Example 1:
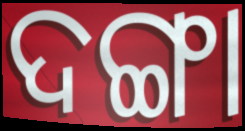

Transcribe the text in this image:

ଦଙ୍ଗା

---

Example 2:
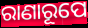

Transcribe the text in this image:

ରାଣାରୂପେ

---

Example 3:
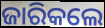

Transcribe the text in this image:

ଜାରିକଲେ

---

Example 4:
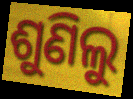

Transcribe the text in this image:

ଶୁଣିଲୁ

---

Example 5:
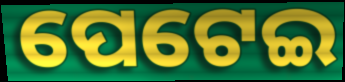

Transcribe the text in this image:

ପେଟେଇ